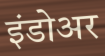
इंडोअर